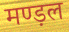
मण्ड़ल